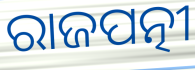
ରାଜପତ୍ନୀ